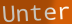
Unter